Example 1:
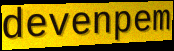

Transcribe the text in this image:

devenpem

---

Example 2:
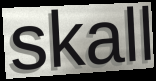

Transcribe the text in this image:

skall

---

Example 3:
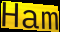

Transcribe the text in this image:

Ham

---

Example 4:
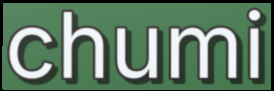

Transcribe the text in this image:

chumi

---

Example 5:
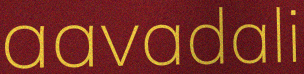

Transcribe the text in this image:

aavadali